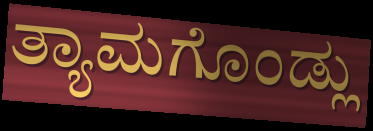
ತ್ಯಾಮಗೊಂಡ್ಲು